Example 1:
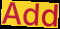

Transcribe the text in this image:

Add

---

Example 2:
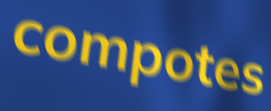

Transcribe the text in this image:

compotes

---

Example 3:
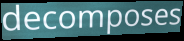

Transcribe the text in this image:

decomposes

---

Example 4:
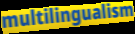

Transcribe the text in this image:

multilingualism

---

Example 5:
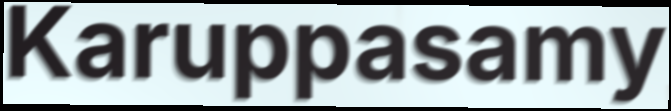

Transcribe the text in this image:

Karuppasamy